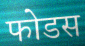
फोडस